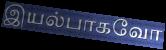
இயல்பாகவோ